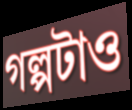
গল্পটাও